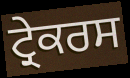
ਟ੍ਰੇਕਰਸ